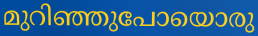
മുറിഞ്ഞുപോയൊരു